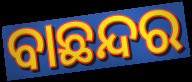
ବାଛନ୍ଦର